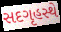
સદગૃહસ્થે